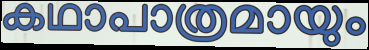
കഥാപാത്രമായും